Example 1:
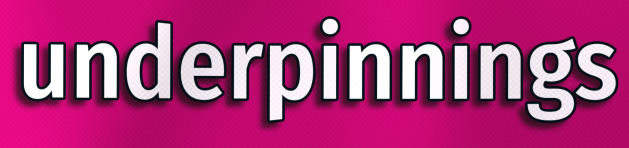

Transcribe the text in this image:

underpinnings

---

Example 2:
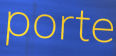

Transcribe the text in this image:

porte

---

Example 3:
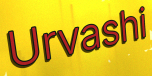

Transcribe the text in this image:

Urvashi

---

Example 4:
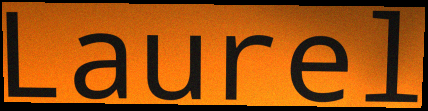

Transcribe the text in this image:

Laurel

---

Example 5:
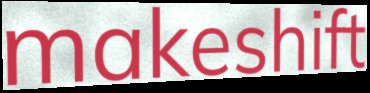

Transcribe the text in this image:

makeshift